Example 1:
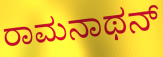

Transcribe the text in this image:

ರಾಮನಾಥನ್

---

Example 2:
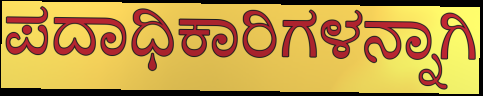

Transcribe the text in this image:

ಪದಾಧಿಕಾರಿಗಳನ್ನಾಗಿ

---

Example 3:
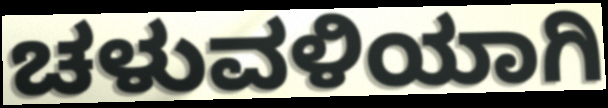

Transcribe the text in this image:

ಚಳುವಳಿಯಾಗಿ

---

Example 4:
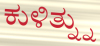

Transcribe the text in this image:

ಕುಳಿತ್ನ್ನು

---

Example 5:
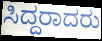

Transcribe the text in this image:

ಸಿದ್ದರಾದರು